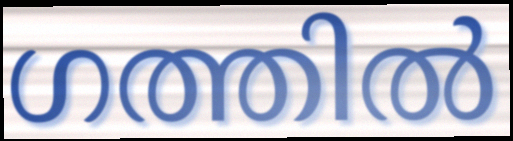
ഗത്തിൽ